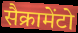
सैक्रामेंटो